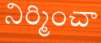
నిర్మించా